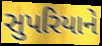
સુપરિયાને